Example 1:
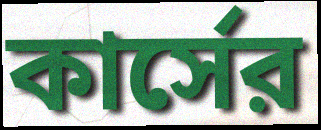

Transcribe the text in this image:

কার্সের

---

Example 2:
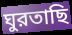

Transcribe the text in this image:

ঘুরতাছি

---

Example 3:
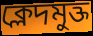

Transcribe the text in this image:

ক্লেদমুক্ত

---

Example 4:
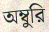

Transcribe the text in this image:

অম্বুরি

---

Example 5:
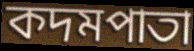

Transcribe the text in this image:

কদমপাতা